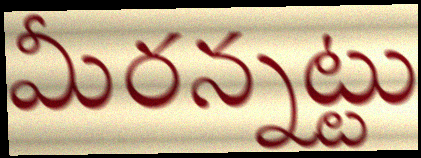
మీరన్నట్టు